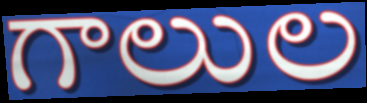
గాలుల